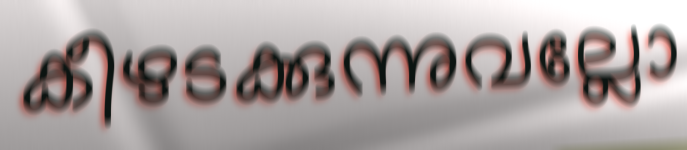
കീഴടക്കുന്നുവല്ലോ